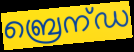
ബ്രെന്ഡ